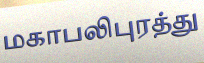
மகாபலிபுரத்து